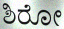
ಶಿರೋ